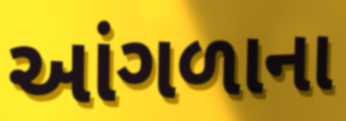
આંગળાના